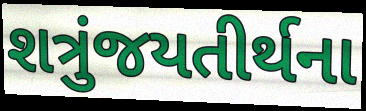
શત્રુંજયતીર્થના